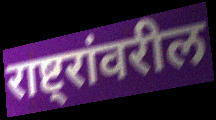
राष्ट्रांवरील